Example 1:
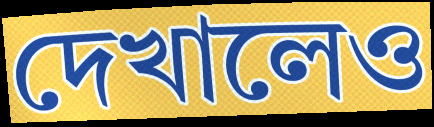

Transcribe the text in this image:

দেখালেও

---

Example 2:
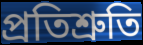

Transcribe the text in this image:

প্রতিশ্রুতি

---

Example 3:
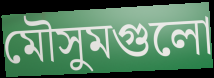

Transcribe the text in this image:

মৌসুমগুলো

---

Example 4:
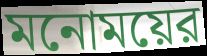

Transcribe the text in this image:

মনোময়ের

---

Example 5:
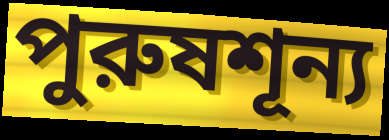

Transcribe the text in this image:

পুরুষশূন্য